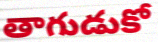
తాగుడుకో